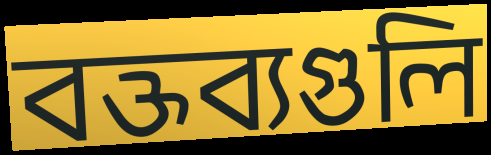
বক্তব্যগুলি